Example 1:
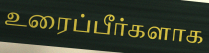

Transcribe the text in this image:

உரைப்பீர்களாக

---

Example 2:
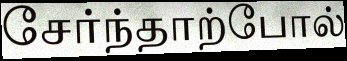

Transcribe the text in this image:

சேர்ந்தாற்போல்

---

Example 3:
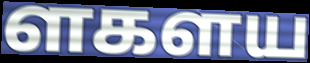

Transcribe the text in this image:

ளகளய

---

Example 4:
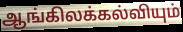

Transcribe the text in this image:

ஆங்கிலக்கல்வியும்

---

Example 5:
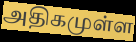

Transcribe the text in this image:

அதிகமுள்ள